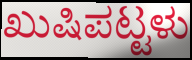
ಖುಷಿಪಟ್ಟಳು